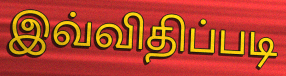
இவ்விதிப்படி